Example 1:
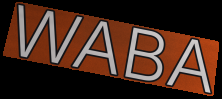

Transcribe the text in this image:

WABA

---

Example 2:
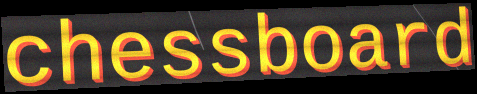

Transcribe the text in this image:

chessboard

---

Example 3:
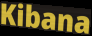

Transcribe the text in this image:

Kibana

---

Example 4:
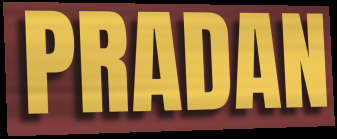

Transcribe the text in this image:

PRADAN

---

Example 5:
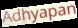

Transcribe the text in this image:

Adhyapan